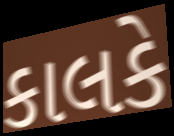
કાલકે